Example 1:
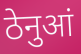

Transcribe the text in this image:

ठेनुआं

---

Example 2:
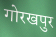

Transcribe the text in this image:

गोरखपुर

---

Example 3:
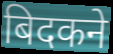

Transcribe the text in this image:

बिदकने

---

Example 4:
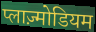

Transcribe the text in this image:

प्लाज़्मोडियम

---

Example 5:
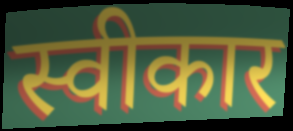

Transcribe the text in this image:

स्वीकार